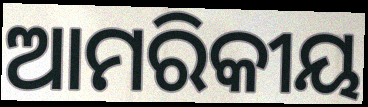
ଆମରିକୀୟ